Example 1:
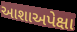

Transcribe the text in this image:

આશાઅપેક્ષા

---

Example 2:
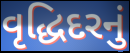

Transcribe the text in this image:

વૃદ્ધિદરનું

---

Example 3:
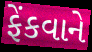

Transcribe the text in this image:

ફેંકવાને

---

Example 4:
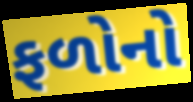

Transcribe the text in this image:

ફળોનો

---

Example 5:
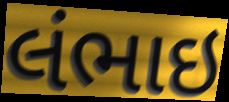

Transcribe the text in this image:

લંભાઇ